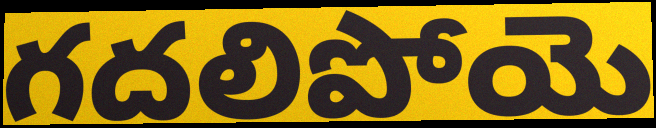
గదలిపోయె